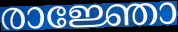
രാജ്ഞോ